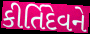
કીર્તિદેવને